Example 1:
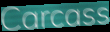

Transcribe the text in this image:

Carcass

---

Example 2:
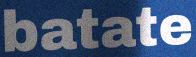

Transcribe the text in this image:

batate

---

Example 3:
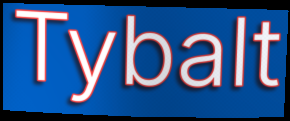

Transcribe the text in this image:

Tybalt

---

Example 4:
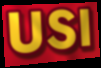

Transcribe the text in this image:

USI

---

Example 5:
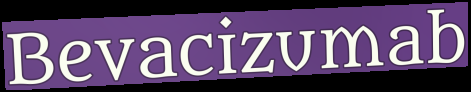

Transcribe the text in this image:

Bevacizumab